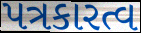
પત્રકારત્વ